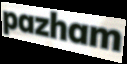
pazham